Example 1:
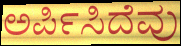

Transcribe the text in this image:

ಅರ್ಪಿಸಿದೆವು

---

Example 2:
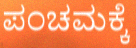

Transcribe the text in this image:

ಪಂಚಮಕ್ಕೆ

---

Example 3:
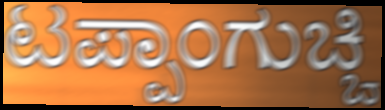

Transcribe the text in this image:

ಟಪ್ಪಾಂಗುಚ್ಚಿ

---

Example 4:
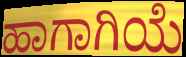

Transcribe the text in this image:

ಹಾಗಾಗಿಯೆ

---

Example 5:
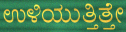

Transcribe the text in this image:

ಉಳಿಯುತ್ತಿತ್ತೇ